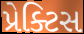
પ્રેક્ટિસ